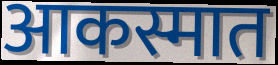
आकस्मात